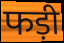
फड़ी